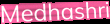
Medhashri